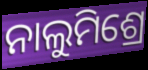
ନାଲୁମିଶ୍ରେ